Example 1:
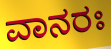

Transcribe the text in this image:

ವಾನರಃ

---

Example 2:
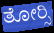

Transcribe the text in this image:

ತೋರ್‍ಸಿ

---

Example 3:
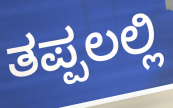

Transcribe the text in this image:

ತಪ್ಪಲಲ್ಲಿ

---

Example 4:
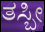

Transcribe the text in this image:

ತಸ್ಬೀ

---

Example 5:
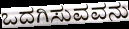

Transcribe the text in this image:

ಒದಗಿಸುವವನು